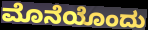
ಮೊನೆಯೊಂದು